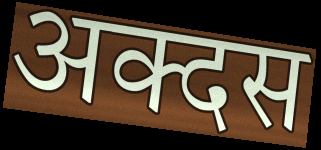
अक्दस